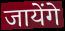
जायेंगे